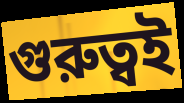
গুরুত্বই